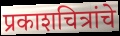
प्रकाशचित्रांचे